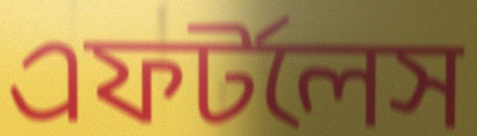
এফর্টলেস